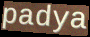
padya